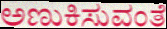
ಅಣುಕಿಸುವಂತೆ